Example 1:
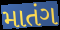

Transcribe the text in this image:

માતંગ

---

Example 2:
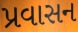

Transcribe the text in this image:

પ્રવાસન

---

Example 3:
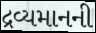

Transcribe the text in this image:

દ્રવ્યમાનની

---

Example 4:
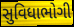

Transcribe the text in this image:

સુવિધાભોગી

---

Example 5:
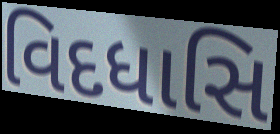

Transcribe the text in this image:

વિદધાસિ